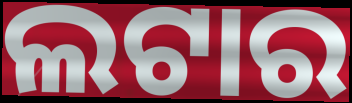
ଲଟାର